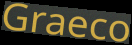
Graeco